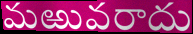
మఱువరాదు